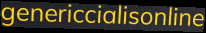
genericcialisonline